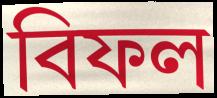
বিফল